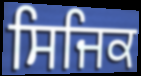
ਸਿਜਿਕ